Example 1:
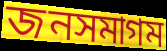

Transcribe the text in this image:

জনসমাগম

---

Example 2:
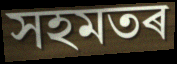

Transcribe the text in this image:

সহমতৰ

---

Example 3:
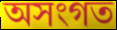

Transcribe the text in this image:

অসংগত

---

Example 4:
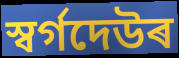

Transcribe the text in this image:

স্বৰ্গদেউৰ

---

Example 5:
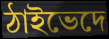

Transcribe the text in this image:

ঠাইভেদে